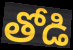
తోడి